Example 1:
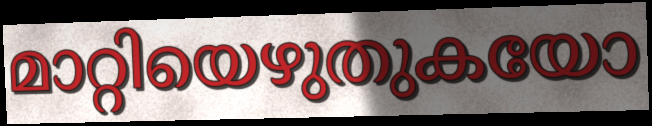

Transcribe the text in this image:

മാറ്റിയെഴുതുകയോ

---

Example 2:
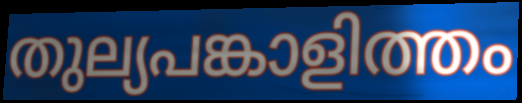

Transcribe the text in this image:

തുല്യപങ്കാളിത്തം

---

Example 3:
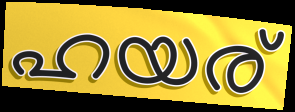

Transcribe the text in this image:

ഹയര്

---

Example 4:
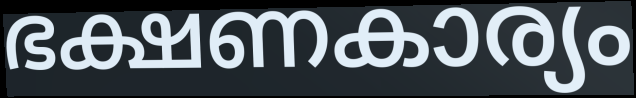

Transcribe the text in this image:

ഭക്ഷണകാര്യം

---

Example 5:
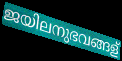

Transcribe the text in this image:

ജയിലനുഭവങ്ങള്